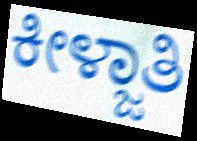
ಕೀಳ್ಜಾತಿ